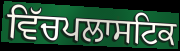
ਵਿੱਚਪਲਾਸਟਿਕ